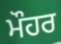
ਮੌਹਰ